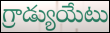
గ్రాడ్యుయేటు